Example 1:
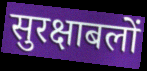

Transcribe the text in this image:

सुरक्षाबलों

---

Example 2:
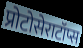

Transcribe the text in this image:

प्रोटोसेराटॉप्स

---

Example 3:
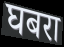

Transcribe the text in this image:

घबरा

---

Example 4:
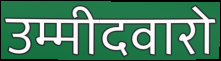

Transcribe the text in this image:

उम्मीदवारो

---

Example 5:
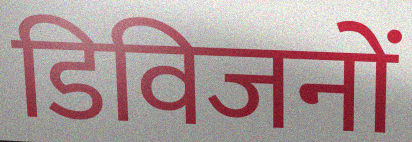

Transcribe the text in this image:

डिविजनों